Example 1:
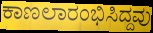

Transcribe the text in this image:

ಕಾಣಲಾರಂಭಿಸಿದ್ದವು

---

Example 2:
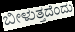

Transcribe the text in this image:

ಬೀಳುತ್ತದೆಂದು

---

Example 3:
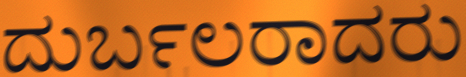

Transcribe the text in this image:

ದುರ್ಬಲರಾದರು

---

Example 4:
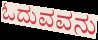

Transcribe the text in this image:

ಓದುವವನು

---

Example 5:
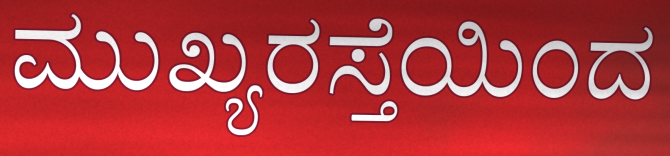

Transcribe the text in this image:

ಮುಖ್ಯರಸ್ತೆಯಿಂದ